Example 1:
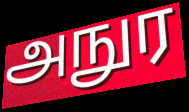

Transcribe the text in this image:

அநுர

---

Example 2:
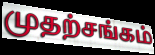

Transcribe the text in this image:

முதற்சங்கம்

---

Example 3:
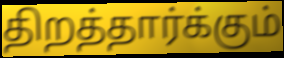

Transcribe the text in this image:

திறத்தார்க்கும்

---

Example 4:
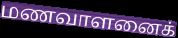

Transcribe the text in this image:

மணவாளனைக்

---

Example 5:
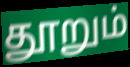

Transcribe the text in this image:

தூறும்